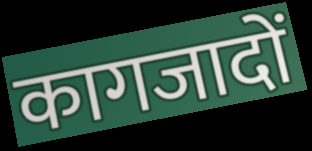
कागजादों